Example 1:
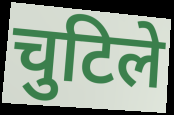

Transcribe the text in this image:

चुटिले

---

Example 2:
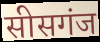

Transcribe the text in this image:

सीसगंज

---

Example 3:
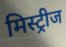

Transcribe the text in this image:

मिस्ट्रीज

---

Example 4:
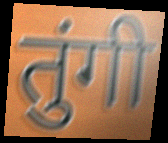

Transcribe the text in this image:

तुंगी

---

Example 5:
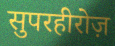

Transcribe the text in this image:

सुपरहीरोज़